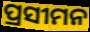
ପ୍ରସୀମନ